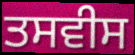
ਤਸਵੀਸ